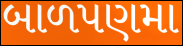
બાળપણમા